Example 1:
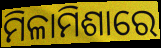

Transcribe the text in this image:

ମିଳାମିଶାରେ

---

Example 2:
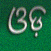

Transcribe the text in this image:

ଓଡ଼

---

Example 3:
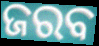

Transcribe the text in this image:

ଜରବ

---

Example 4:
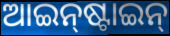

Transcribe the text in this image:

ଆଇନ୍‌ଷ୍ଟାଇନ୍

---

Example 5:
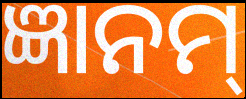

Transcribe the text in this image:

ଜ୍ଞାନମ୍